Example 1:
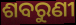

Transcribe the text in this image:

ଶବରୁଣୀ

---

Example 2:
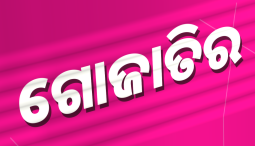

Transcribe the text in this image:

ଗୋଜାତିର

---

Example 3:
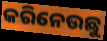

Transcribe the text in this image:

କରିନେଉଛୁ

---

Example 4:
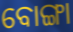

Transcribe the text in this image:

ବୋଙ୍ଗା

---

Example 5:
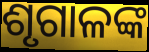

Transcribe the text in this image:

ଶୃଗାଳଙ୍କ